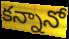
కన్నానో